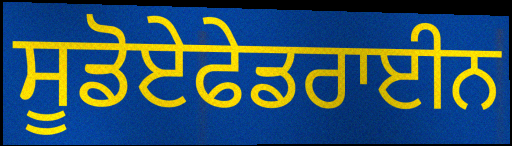
ਸੂਡੋਏਫੇਡਰਾਈਨ